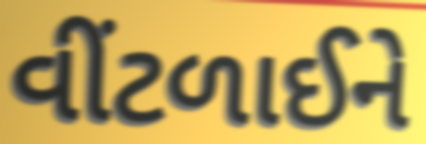
વીંટળાઈને